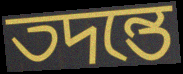
তদন্তে